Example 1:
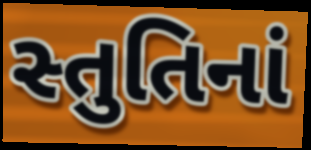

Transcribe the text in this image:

સ્તુતિનાં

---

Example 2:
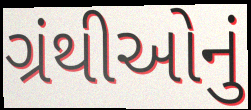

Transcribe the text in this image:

ગ્રંથીઓનું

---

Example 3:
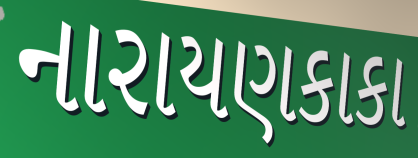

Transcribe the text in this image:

નારાયણકાકા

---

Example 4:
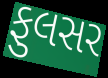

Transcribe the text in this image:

ફુલસર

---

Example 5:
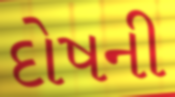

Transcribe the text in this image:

દોષની